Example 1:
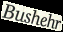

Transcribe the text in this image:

Bushehr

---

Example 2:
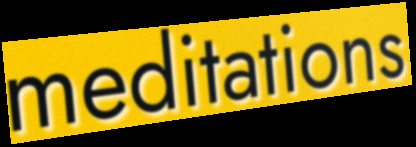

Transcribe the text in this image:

meditations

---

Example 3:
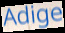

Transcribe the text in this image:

Adige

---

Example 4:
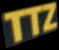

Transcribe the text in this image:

TTZ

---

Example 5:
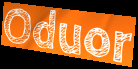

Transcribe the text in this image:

Oduor